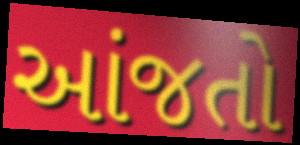
આંજતો